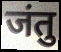
जंतु